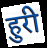
हुरी